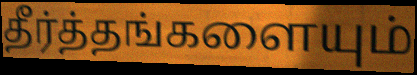
தீர்த்தங்களையும்